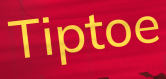
Tiptoe